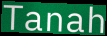
Tanah